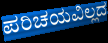
ಪರಿಚಯವಿಲ್ಲದ